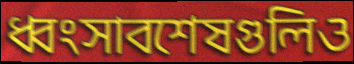
ধ্বংসাবশেষগুলিও